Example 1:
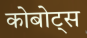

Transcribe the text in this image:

कोबोट्स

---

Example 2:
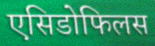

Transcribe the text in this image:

एसिडोफिलस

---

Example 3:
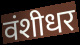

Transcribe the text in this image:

वंशीधर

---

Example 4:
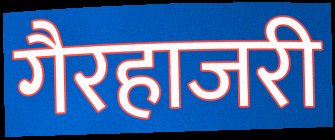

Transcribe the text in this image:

गैरहाजरी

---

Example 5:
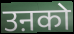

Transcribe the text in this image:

उऩको